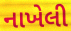
નાખેલી